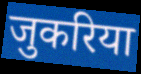
जुकरिया